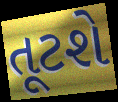
તૂટશે